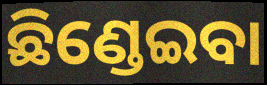
ଛିଣ୍ଡେଇବା